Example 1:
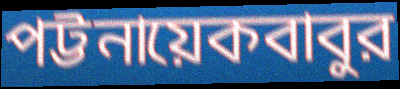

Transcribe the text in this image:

পট্টনায়েকবাবুর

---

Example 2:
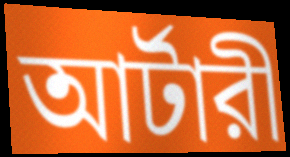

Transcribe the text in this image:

আর্টারী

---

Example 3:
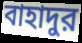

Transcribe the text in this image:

বাহাদুর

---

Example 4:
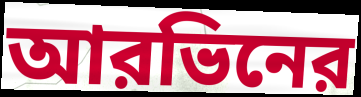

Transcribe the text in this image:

আরভিনের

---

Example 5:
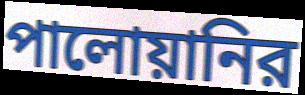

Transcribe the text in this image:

পালোয়ানির